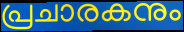
പ്രചാരകനും